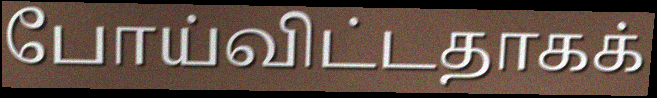
போய்விட்டதாகக்